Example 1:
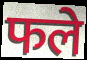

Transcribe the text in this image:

फले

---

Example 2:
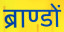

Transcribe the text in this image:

ब्राण्डों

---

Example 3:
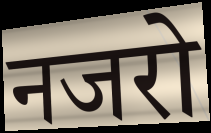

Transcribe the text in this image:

नजरो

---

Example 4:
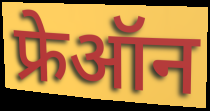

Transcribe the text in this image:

फ्रेऑन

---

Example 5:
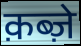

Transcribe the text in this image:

क़ब्ज़े